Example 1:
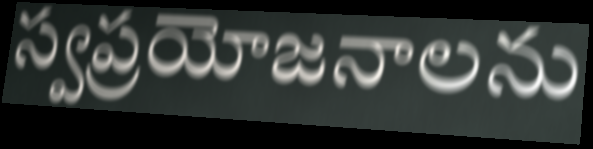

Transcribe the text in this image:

స్వప్రయోజనాలను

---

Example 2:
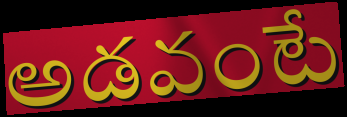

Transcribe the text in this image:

అడవంటే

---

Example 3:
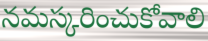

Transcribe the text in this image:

నమస్కరించుకోవాలి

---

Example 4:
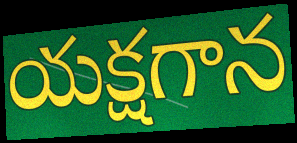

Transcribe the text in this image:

యక్షగాన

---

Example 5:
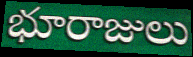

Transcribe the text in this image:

భూరాజులు